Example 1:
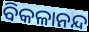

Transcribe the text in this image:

ବିକଳାନନ୍ଦ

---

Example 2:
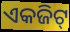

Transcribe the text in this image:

ଏକଜିଟ୍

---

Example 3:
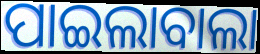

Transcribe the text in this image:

ପାଇଲାବାଲା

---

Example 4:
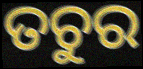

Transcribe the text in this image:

ତଚୁର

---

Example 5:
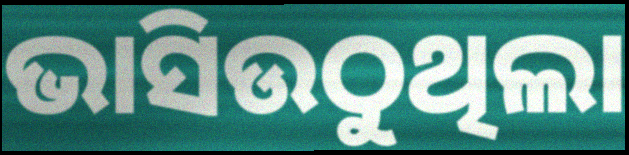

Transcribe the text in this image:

ଭାସିଉଠୁଥିଲା